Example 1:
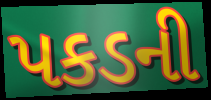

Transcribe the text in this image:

પકડની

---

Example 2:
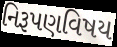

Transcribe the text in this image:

નિરૂપણવિષય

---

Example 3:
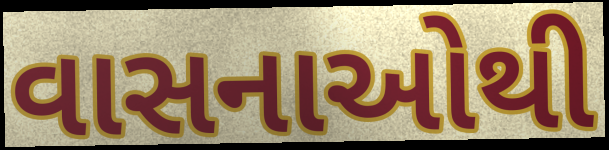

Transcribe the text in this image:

વાસનાઓથી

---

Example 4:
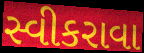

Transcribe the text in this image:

સ્વીકરાવા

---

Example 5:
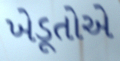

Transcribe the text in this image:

ખેડૂતોએ